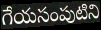
గేయసంపుటిని